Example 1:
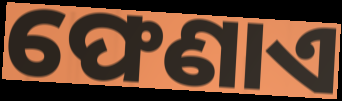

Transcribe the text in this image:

ଫେଣାଏ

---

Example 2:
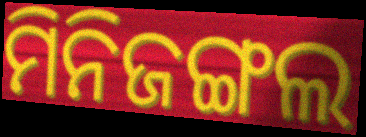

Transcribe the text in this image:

ମିନିଜଙ୍ଗଲ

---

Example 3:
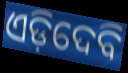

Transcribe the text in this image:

ଏଡ଼ିଦେବି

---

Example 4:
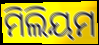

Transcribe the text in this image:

ମିଲିୟମ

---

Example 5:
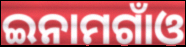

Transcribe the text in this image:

ଇନାମଗାଁଓ